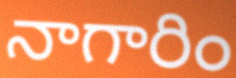
నాగారిం